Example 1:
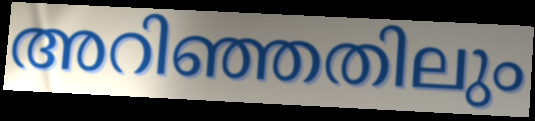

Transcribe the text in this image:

അറിഞ്ഞതിലും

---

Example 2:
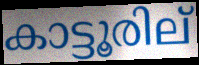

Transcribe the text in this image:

കാട്ടൂരില്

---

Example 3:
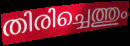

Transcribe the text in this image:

തിരിച്ചെത്തും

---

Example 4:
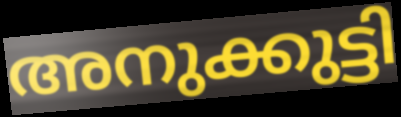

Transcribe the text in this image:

അനുക്കുട്ടി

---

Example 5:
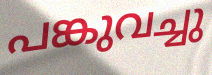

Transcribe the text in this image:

പങ്കുവച്ചു